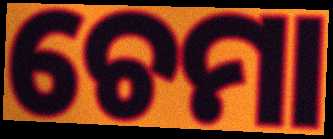
ଚେମା